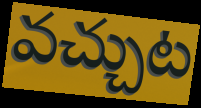
వచ్చుట